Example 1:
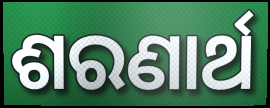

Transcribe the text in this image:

ଶରଣାର୍ଥ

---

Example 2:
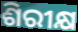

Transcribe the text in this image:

ଶିରୀକ୍ଷ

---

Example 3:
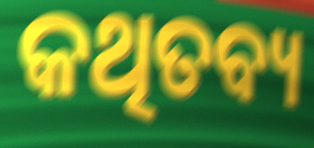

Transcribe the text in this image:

କଥିତବ୍ୟ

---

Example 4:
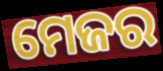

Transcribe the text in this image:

ମେଜର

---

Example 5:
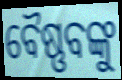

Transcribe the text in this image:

ବୈଷ୍ଣବଙ୍କୁ